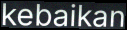
kebaikan